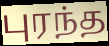
புரந்த